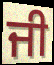
ਜੀ